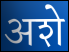
अशे